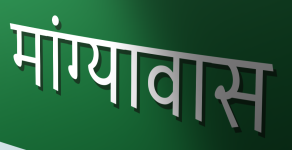
मांग्यावास